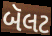
બૅલટ